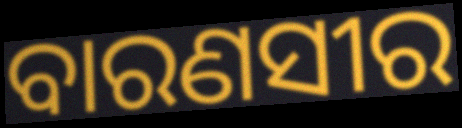
ବାରଣସୀର